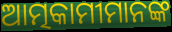
ଆତ୍ମକାମୀମାନଙ୍କ